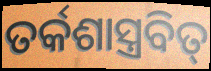
ତର୍କଶାସ୍ତ୍ରବିତ୍